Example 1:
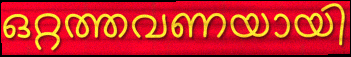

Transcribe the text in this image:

ഒറ്റത്തവണയായി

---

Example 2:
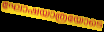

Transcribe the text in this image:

ഘോഷയാത്രയോടെ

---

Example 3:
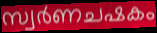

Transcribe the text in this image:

സ്വർണചഷകം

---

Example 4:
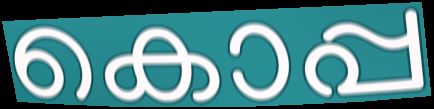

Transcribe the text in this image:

കൊപ്പ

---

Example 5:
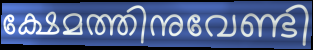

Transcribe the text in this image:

ക്ഷേമത്തിനുവേണ്ടി